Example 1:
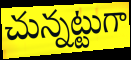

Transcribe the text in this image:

చున్నట్టుగా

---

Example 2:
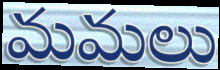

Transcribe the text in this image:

మమలు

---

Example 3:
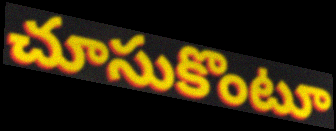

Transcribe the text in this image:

చూసుకొంటూ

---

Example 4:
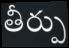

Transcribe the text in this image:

తీర్పు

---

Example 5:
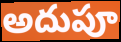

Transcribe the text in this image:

అదుపూ